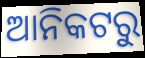
ଆନିକଟରୁ